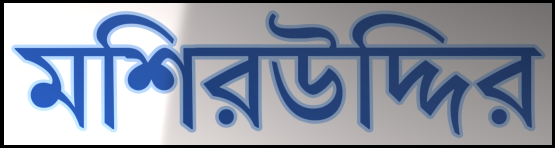
মশিরউদ্দির